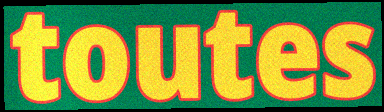
toutes